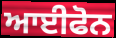
ਆਈਫੋਨ